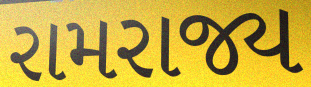
રામરાજ્ય